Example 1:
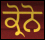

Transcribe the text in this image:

ਕ੍ਰੋਨੋ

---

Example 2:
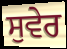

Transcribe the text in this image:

ਸੁਵੇਰ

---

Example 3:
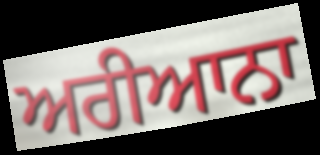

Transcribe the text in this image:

ਅਰੀਆਨਾ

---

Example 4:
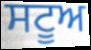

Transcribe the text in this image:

ਸਟੂਅ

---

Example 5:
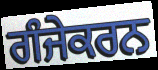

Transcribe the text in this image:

ਗੰਜੇਕਰਨ